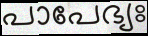
പാപേഭ്യഃ